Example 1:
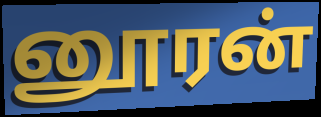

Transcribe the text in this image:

னூரன்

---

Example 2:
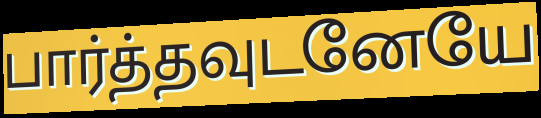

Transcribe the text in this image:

பார்த்தவுடனேயே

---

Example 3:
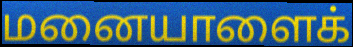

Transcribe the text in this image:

மனையாளைக்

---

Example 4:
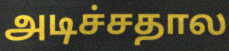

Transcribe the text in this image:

அடிச்சதால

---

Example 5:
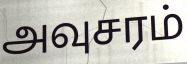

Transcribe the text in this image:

அவுசரம்